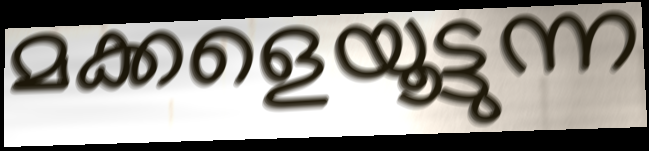
മക്കളെയൂട്ടുന്ന